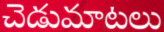
చెడుమాటలు